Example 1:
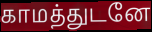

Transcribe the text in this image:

காமத்துடனே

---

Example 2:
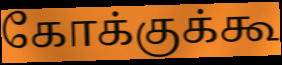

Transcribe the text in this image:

கோக்குக்கூ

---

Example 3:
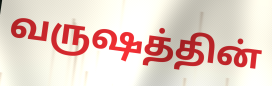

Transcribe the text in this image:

வருஷத்தின்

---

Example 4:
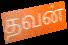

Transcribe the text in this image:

தவன்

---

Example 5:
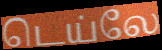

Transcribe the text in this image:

டெய்லே